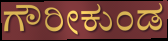
ಗೌರೀಕುಂಡ